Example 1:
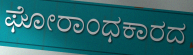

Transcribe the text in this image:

ಘೋರಾಂಧಕಾರದ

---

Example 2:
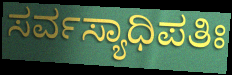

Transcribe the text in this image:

ಸರ್ವಸ್ಯಾಧಿಪತಿಃ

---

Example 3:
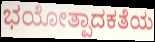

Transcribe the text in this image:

ಭಯೋತ್ಪಾದಕತೆಯ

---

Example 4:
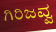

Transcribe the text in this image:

ಗಿರಿಜವ್ವ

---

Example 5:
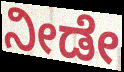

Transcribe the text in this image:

ನೀಡೇ